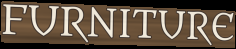
FURNITURE